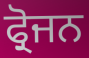
ਫ੍ਰੋਜਨ